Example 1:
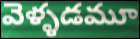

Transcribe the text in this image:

వెళ్ళడమూ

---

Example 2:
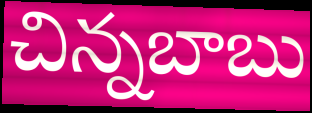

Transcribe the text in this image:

చిన్నబాబు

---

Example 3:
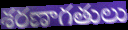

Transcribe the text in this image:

శరణాగతులు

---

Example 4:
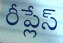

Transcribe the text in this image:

రీప్లేస్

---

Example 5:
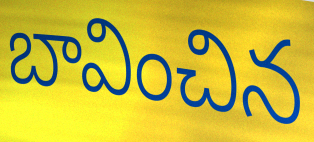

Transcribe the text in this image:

బావించిన